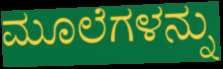
ಮೂಲೆಗಳನ್ನು